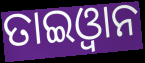
ତାଇଓ୍ୱାନ